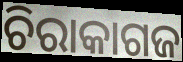
ଚିରାକାଗଜ